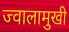
ज्वालामुखी